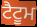
ਟੈਟੂਮ